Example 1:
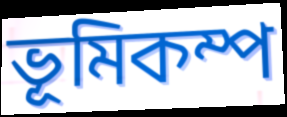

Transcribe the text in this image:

ভূমিকম্প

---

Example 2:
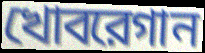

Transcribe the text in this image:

খোবরেগান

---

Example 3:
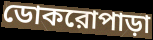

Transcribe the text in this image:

ডোকরোপাড়া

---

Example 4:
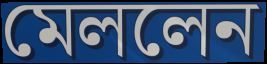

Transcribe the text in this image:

মেললেন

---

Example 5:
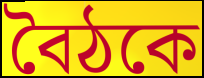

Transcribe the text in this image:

বৈঠকে